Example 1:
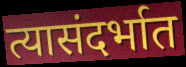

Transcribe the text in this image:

त्यासंदर्भात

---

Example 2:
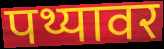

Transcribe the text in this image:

पथ्यावर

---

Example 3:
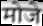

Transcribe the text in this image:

मोजे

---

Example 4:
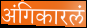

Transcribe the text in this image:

अंगिकारलं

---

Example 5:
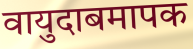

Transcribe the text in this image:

वायुदाबमापक